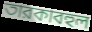
তারকাবহুল